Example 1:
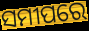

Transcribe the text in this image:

ସମୀପରେ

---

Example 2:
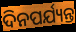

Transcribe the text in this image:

ଦିନପର୍ଯ୍ୟନ୍ତ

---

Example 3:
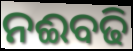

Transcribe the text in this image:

ନଈବଢି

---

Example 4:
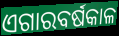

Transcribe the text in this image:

ଏଗାରବର୍ଷକାଳ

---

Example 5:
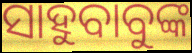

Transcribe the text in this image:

ସାହୁବାବୁଙ୍କ